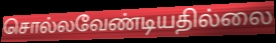
சொல்லவேண்டியதில்லை